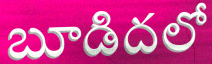
బూడిదలో